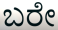
ಬರೇ